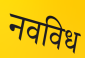
नवविध